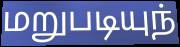
மறுபடியுந்